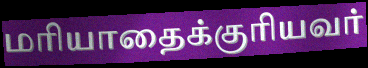
மரியாதைக்குரியவர்